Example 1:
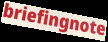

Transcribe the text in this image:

briefingnote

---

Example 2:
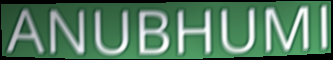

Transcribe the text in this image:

ANUBHUMI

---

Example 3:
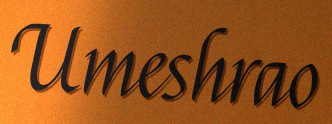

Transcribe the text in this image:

Umeshrao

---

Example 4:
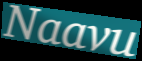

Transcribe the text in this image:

Naavu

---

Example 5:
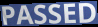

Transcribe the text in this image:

PASSED